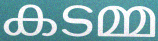
കടമ്മ